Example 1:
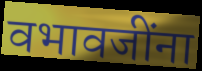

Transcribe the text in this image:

वभावजींना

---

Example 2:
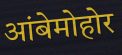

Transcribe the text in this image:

आंबेमोहोर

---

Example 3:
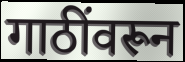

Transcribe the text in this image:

गाठींवरून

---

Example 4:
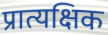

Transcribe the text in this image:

प्रात्यक्षिक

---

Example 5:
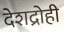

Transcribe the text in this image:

देशद्रोही